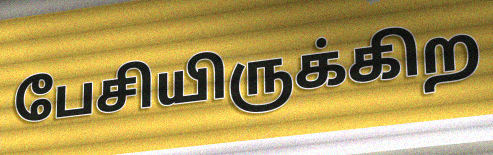
பேசியிருக்கிற